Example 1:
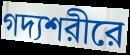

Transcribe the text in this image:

গদ্যশরীরে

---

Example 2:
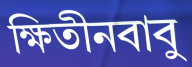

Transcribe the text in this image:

ক্ষিতীনবাবু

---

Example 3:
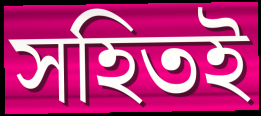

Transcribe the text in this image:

সহিতই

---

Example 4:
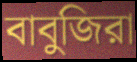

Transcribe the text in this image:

বাবুজিরা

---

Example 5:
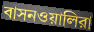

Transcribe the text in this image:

বাসনওয়ালিরা